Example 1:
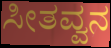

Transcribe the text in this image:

ಸೀತವ್ವನ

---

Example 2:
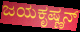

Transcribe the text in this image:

ಜಯಕೃಷ್ಣನ್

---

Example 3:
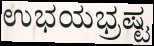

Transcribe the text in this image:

ಉಭಯಭ್ರಷ್ಟ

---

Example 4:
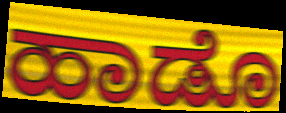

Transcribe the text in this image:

ಹಾಡೊ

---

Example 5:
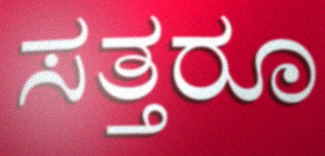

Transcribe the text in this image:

ಸತ್ತರೂ